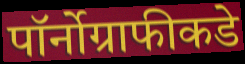
पॉर्नोग्राफीकडे